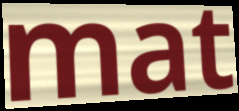
mat